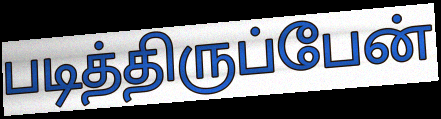
படித்திருப்பேன்